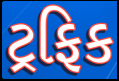
ટ્રફિક